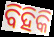
ବିହିକି